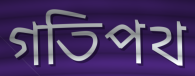
গতিপথ